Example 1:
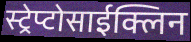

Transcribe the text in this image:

स्ट्रेप्टोसाईक्लिन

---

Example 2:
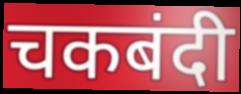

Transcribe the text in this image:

चकबंदी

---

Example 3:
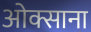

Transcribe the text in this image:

ओक्साना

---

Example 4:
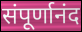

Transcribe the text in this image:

संपूर्णानंद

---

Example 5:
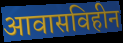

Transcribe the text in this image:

आवासविहीन